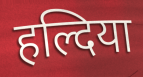
हल्दिया